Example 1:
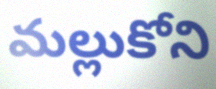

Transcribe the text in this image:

మల్లుకోని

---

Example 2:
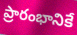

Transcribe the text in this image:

ప్రారంభానికే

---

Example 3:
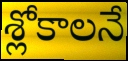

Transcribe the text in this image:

శ్లోకాలనే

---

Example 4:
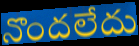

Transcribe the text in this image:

నొందలేదు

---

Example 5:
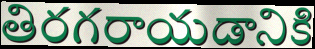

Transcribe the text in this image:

తిరగరాయడానికి